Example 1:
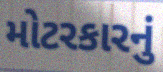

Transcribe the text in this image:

મોટરકારનું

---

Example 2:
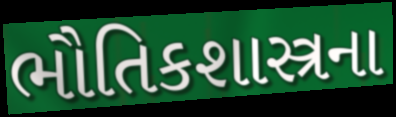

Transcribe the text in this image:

ભૌતિકશાસ્ત્રના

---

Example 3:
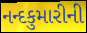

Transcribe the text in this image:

નન્દકુમારીની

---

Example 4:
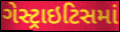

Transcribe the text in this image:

ગેસ્ટ્રાઇટિસમાં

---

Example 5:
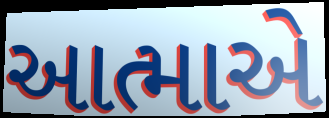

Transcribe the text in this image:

આત્માએ